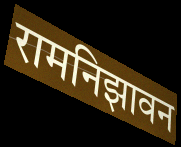
रामनिझावन